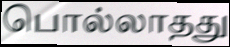
பொல்லாதது